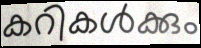
കറികൾക്കും